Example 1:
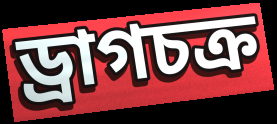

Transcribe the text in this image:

ড্রাগচক্র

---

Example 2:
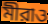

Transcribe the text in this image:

মীরাও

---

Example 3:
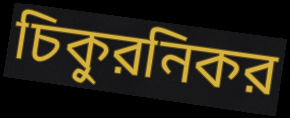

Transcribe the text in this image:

চিকুরনিকর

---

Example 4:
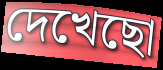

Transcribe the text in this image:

দেখেছো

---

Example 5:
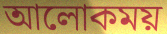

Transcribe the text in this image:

আলোকময়